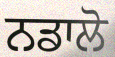
ਨਡਾਲੋ